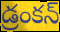
డ్రంకన్